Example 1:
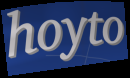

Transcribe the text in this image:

hoyto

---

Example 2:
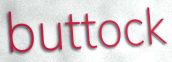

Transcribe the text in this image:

buttock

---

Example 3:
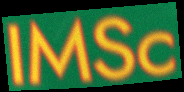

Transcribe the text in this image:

IMSc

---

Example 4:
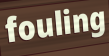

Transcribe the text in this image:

fouling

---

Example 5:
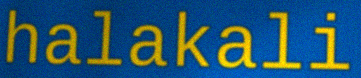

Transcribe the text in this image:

halakali